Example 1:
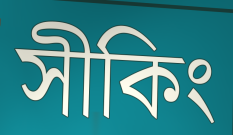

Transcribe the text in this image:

সীকিং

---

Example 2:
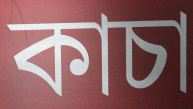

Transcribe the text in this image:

কাচা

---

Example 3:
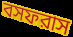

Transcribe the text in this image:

বসফরাস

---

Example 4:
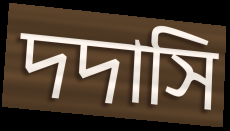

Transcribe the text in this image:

দদাসি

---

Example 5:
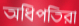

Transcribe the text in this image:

অধিপতিরা